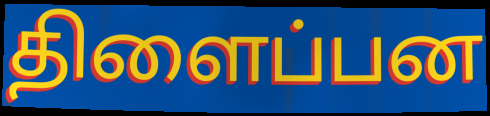
திளைப்பன